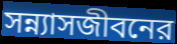
সন্ন্যাসজীবনের